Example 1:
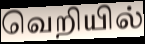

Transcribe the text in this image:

வெறியில்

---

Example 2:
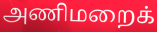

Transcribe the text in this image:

அணிமறைக்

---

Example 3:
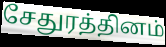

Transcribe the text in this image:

சேதுரத்தினம்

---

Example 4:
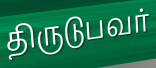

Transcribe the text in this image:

திருடுபவர்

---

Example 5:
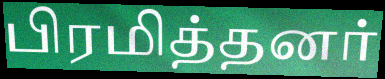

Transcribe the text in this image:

பிரமித்தனர்